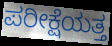
ಪರೀಕ್ಷೆಯತ್ತ